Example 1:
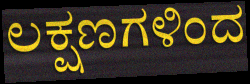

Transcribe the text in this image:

ಲಕ್ಷಣಗಳಿಂದ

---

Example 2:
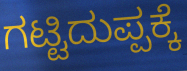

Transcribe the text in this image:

ಗಟ್ಟಿದುಪ್ಪಕ್ಕೆ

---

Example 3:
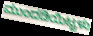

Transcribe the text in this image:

ಮುಂದಡಿಯಿಟ್ಟಳು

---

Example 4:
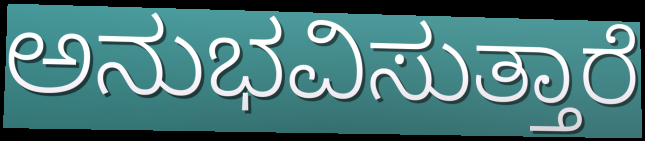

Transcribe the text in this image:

ಅನುಭವಿಸುತ್ತಾರೆ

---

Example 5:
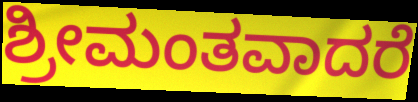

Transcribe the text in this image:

ಶ್ರೀಮಂತವಾದರೆ